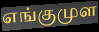
எங்குமுள